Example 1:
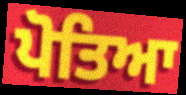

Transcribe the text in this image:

ਪੋਤਿਆ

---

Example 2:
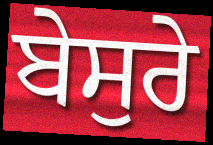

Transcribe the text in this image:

ਬੇਸੁਰੇ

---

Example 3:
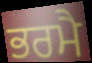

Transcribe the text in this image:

ਭਰਮੈ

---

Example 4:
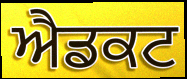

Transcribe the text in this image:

ਐਡਕਟ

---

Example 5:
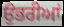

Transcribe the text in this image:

ਉਭਰੀਆਂ